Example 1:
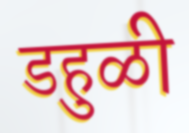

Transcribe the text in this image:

डहुळी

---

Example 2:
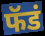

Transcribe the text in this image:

फॅडं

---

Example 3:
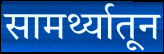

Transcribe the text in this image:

सामर्थ्यातून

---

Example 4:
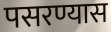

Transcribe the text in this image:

पसरण्यास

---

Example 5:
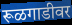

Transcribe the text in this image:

रूळगाडीवर